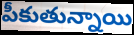
పీకుతున్నాయి